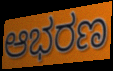
ಆಭರಣ